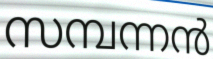
സമ്പന്നൻ